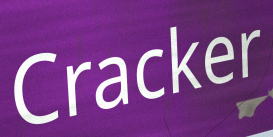
Cracker